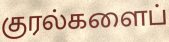
குரல்களைப்